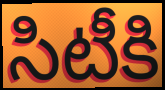
సిటీకి